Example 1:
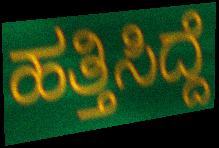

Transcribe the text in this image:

ಹತ್ತಿಸಿದ್ದೆ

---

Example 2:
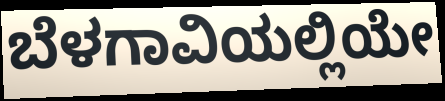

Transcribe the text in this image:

ಬೆಳಗಾವಿಯಲ್ಲಿಯೇ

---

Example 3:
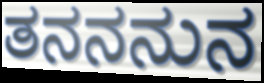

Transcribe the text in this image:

ತನನನುನ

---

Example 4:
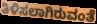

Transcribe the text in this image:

ತಿಳಿಸಲಾಗಿರುವಂತೆ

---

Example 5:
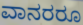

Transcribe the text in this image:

ವಾನರರೂ